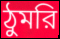
ঠুমরি